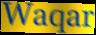
Waqar